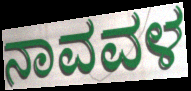
ನಾವವಳ